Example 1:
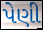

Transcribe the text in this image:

પેણી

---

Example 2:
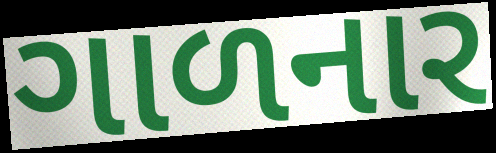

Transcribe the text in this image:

ગાળનાર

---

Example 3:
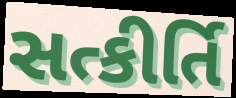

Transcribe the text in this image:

સત્કીર્તિ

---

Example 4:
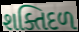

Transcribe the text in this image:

શક્તિદળ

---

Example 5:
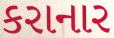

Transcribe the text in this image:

કરાનાર